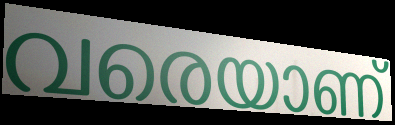
വരെയാണ്